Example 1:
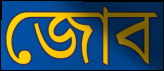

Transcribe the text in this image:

জোব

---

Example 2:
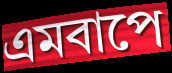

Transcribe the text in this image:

এমবাপে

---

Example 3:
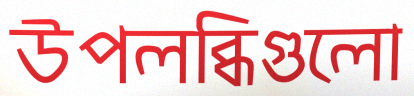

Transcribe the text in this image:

উপলব্ধিগুলো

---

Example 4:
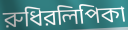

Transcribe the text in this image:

রুধিরলিপিকা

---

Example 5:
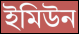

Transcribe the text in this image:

ইমিউন